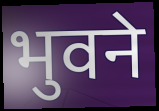
भुवने